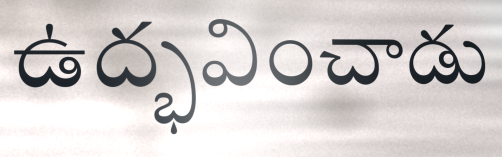
ఉద్భవించాడు